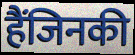
हैंजिनकी